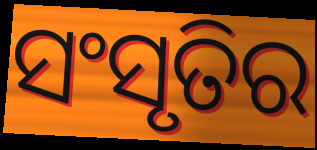
ସଂସୃତିର